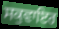
ਸਕੁਵਾਇਰ